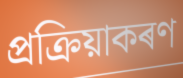
প্ৰক্ৰিয়াকৰণ